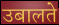
उबालते